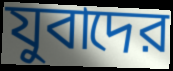
যুবাদের